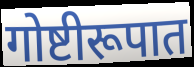
गोष्टीरूपात